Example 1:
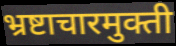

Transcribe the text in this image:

भ्रष्टाचारमुक्ती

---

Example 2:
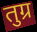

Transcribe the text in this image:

तुग्र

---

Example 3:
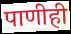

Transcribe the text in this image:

पाणीही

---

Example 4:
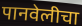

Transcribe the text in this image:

पानवेलीचा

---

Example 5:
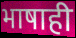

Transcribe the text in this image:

भाषाही